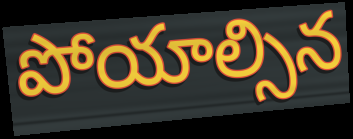
పోయాల్సిన